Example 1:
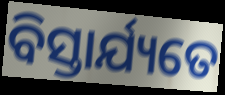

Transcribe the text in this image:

ବିସ୍ତାର୍ଯ୍ୟତେ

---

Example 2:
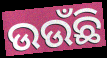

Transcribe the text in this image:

ଉଉଁଛି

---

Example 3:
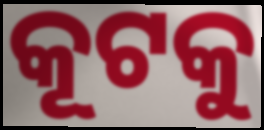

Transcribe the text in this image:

କୂଟକୁ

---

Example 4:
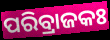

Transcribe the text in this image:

ପରିବ୍ରାଜକଃ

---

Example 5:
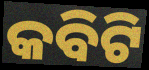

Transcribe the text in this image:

କବିଟି